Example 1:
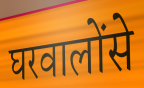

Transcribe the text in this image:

घरवालोंसे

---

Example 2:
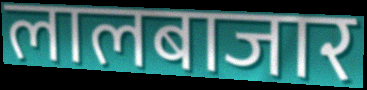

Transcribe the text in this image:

लालबाजार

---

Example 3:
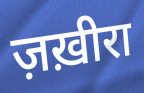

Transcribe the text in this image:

ज़ख़ीरा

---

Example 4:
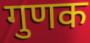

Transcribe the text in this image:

गुणक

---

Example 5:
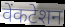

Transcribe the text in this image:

वेंकटेशन